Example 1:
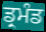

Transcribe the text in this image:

ਡ੍ਰਮੰਡ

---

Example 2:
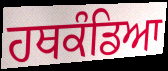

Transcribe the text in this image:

ਹਥਕੰਡਿਆ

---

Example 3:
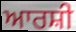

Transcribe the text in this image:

ਆਰਸ਼ੀ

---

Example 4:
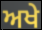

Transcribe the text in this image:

ਅਖੇ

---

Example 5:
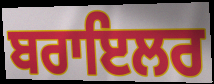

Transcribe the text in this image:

ਬਰਾਇਲਰ